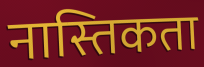
नास्तिकता